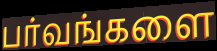
பர்வங்களை